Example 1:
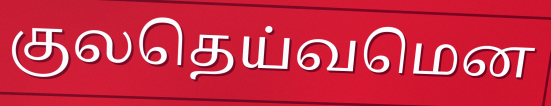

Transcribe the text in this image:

குலதெய்வமென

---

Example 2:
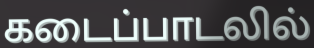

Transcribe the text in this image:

கடைப்பாடலில்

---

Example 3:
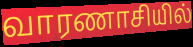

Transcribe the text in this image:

வாரணாசியில்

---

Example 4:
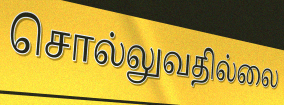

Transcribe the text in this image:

சொல்லுவதில்லை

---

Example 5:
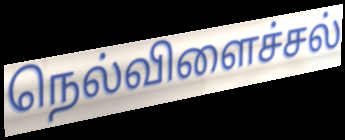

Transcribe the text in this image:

நெல்விளைச்சல்